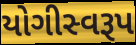
યોગીસ્વરૂપ